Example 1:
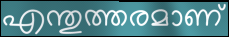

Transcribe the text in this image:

എന്തുത്തരമാണ്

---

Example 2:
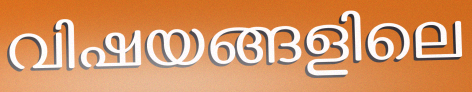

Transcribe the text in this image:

വിഷയങ്ങളിലെ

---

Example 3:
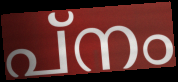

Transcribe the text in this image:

പ്നം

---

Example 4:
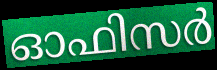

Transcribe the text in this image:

ഓഫിസർ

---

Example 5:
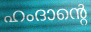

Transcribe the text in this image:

ഹംദാന്റെ